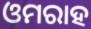
ଓମରାହ